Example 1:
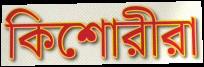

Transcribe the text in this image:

কিশোরীরা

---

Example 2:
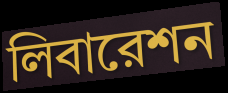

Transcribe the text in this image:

লিবারেশন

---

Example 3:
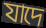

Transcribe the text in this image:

যাদে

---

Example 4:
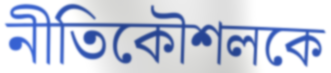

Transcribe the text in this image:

নীতিকৌশলকে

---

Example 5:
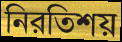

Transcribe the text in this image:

নিরতিশয়